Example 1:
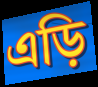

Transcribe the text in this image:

এড়ি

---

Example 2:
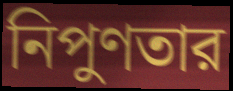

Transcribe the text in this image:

নিপুণতার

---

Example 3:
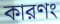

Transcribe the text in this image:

কারণং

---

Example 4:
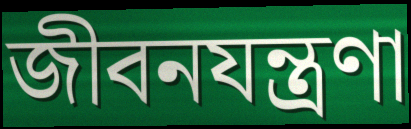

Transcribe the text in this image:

জীবনযন্ত্রণা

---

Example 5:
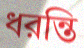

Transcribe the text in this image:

ধরন্তি